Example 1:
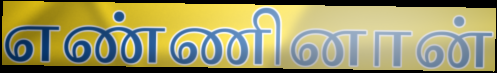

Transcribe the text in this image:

எண்ணினான்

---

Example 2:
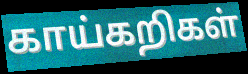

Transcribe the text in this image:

காய்கறிகள்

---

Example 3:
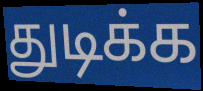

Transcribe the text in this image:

துடிக்க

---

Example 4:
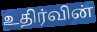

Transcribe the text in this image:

உதிர்வின்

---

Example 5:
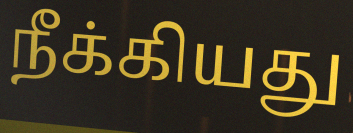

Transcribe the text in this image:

நீக்கியது